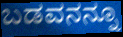
ಬಡವನನ್ನೂ